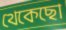
থেকেছো